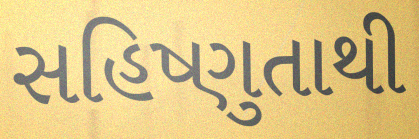
સહિષ્ણુતાથી